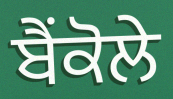
ਬੈਂਕੋਲੇ